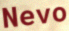
Nevo